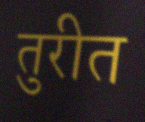
तुरीत